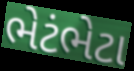
ભેટંભેટા